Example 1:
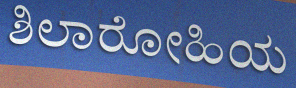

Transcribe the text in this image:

ಶಿಲಾರೋಹಿಯ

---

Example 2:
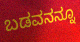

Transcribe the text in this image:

ಬಡವನನ್ನೂ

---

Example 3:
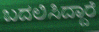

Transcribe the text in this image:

ಬದಲಿಸಿದ್ದಾರೆ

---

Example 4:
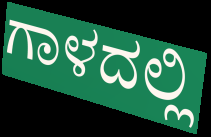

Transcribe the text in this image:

ಗಾಳದಲ್ಲಿ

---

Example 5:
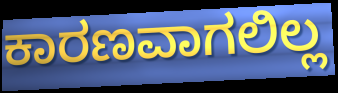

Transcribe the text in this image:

ಕಾರಣವಾಗಲಿಲ್ಲ